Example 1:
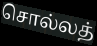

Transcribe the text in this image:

சொல்லத்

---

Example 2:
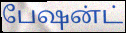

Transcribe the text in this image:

பேஷன்ட்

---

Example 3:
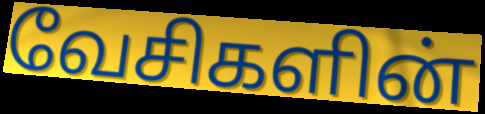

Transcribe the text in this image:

வேசிகளின்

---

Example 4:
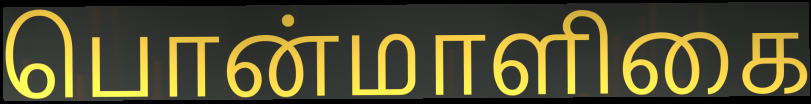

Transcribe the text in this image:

பொன்மாளிகை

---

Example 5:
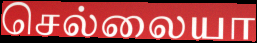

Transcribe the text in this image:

செல்லையா